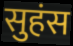
सुहंस